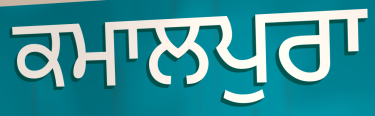
ਕਮਾਲਪੁਰਾ